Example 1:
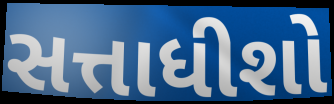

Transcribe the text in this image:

સત્તાધીશો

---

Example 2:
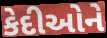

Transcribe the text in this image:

કેદીઓને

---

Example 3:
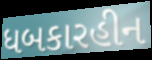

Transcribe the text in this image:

ધબકારહીન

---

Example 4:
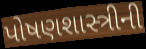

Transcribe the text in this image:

પોષણશાસ્ત્રીની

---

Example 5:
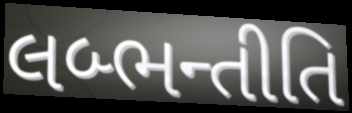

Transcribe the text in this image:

લબ્ભન્તીતિ